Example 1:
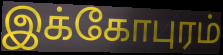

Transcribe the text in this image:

இக்கோபுரம்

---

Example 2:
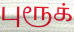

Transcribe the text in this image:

புரூக்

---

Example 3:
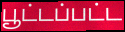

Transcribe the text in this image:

பூட்டப்பட்ட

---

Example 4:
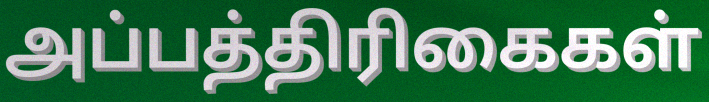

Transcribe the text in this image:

அப்பத்திரிகைகள்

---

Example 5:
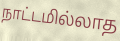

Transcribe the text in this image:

நாட்டமில்லாத